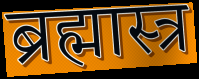
ब्रह्मास्त्र